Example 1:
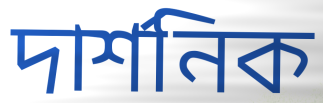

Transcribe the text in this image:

দাৰ্শনিক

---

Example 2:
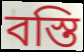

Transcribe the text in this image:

বস্তি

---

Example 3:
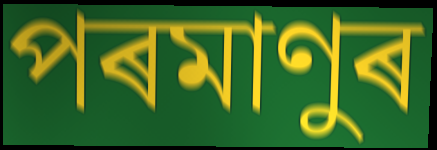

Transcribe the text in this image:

পৰমাণুৰ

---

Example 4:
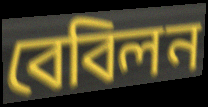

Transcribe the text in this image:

বেবিলন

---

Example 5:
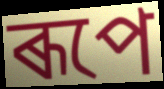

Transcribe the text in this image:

ৰূপে